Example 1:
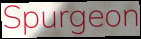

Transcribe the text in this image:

Spurgeon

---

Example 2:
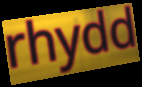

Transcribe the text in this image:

rhydd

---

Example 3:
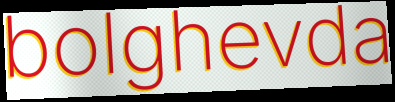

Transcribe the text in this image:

bolghevda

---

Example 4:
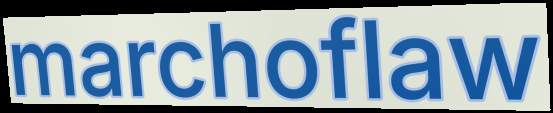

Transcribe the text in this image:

marchoflaw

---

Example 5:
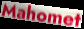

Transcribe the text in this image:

Mahomet